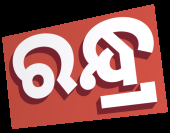
ରନ୍ଧ୍ର